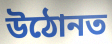
উঠোনত